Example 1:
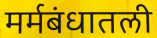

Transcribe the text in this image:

मर्मबंधातली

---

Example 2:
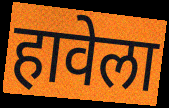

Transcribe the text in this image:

हावेला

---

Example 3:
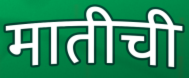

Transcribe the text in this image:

मातीची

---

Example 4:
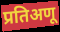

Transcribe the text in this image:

प्रतिअणू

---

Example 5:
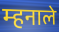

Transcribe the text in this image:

म्हनाले